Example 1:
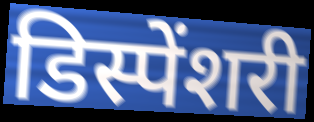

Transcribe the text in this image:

डिस्पेंशरी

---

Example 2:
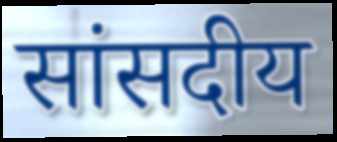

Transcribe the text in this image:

सांसदीय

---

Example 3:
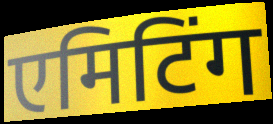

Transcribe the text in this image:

एमिटिंग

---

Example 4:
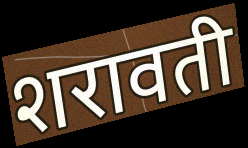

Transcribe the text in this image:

शरावती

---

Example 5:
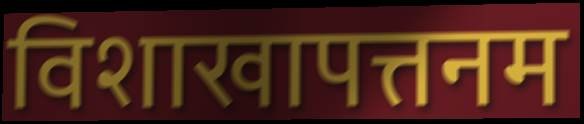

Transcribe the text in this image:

विशाखापत्तनम